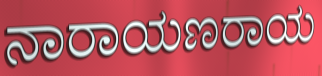
ನಾರಾಯಣರಾಯ